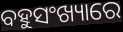
ବହୁସଂଖ୍ୟାରେ